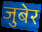
जुबेर